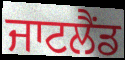
ਜਾਟਲੈਂਡ